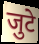
जुटे